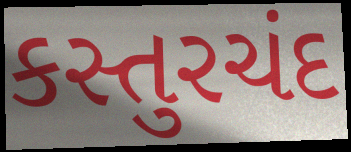
કસ્તુરચંદ